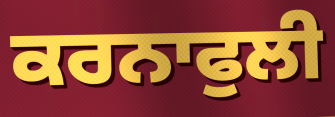
ਕਰਨਾਫੁਲੀ